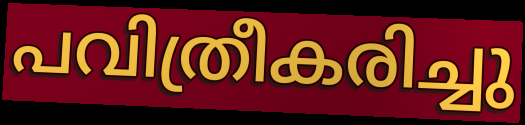
പവിത്രീകരിച്ചു